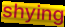
shying